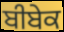
ਬੀਬੇਕ